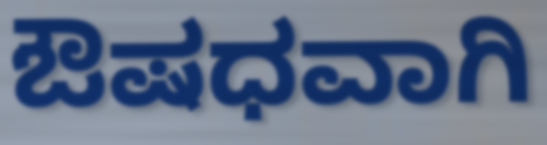
ಔಷಧವಾಗಿ